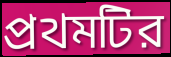
প্রথমটির